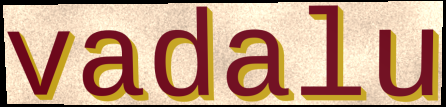
vadalu